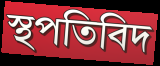
স্থপতিবিদ